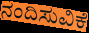
ನಂದಿಸುವಿಕೆ